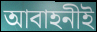
আবাহনীই